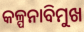
କଳ୍ପନାବିମୁଖ